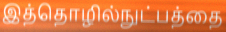
இத்தொழில்நுட்பத்தை